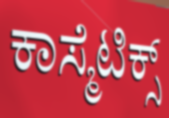
ಕಾಸ್ಮೆಟಿಕ್ಸ್